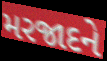
મરજાદને